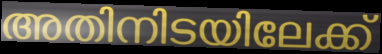
അതിനിടയിലേക്ക്